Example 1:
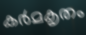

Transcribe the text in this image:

കർമകൃതം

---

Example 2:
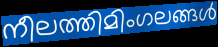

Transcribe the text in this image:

നീലത്തിമിംഗലങ്ങൾ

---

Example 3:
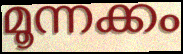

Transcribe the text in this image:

മൂന്നക്കം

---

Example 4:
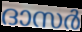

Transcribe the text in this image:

ദാസർ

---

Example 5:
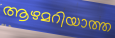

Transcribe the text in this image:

ആഴമറിയാത്ത